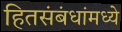
हितसंबंधांमध्ये